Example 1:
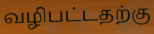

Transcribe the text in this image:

வழிபட்டதற்கு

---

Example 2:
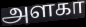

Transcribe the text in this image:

அளகா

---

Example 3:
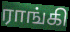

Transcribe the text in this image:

ராங்கி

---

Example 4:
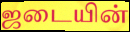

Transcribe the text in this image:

ஜடையின்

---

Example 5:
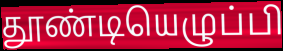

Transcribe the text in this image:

தூண்டியெழுப்பி